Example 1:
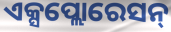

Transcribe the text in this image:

ଏକ୍ସପ୍ଲୋରେସନ୍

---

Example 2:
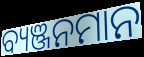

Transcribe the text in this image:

ବ୍ୟଞ୍ଜନମାନ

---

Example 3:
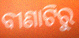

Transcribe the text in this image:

ବୀଣାଟିରୁ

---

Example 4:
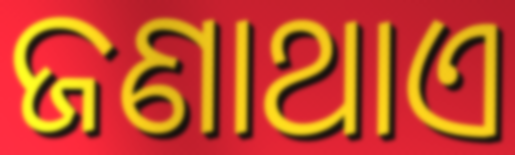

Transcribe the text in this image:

ଜଣାଥାଏ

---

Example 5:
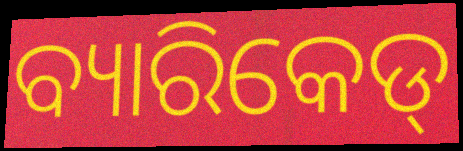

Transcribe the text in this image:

ବ୍ୟାରିକେଡ୍